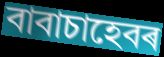
বাবাচাহেবৰ